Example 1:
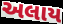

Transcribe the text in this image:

અલાય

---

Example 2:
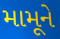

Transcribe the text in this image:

મામૂને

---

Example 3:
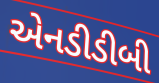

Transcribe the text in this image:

એનડીડીબી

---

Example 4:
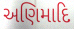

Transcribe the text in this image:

અણિમાદિ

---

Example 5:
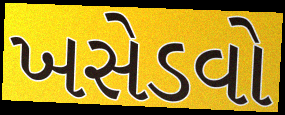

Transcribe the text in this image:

ખસેડવો